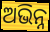
ଅଭିନ୍ନ